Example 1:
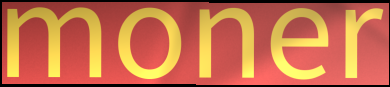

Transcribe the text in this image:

moner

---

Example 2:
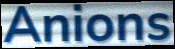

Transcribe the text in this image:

Anions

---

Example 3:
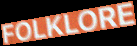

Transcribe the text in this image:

FOLKLORE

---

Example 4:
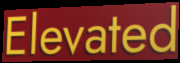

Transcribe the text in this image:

Elevated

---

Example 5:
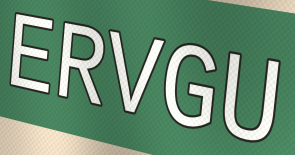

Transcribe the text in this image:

ERVGU